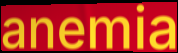
anemia